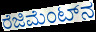
ರೆಜಿಮೆಂಟ್‌ನ